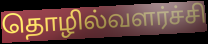
தொழில்வளர்ச்சி